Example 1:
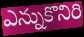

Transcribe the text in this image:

ఎన్నుకొనిరి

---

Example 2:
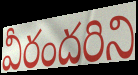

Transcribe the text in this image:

వీరందరిని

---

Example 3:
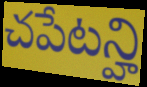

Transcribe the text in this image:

చపేటన్హి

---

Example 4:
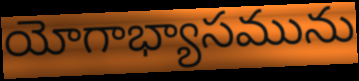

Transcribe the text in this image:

యోగాభ్యాసమును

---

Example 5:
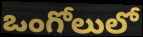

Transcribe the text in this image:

ఒంగోలులో